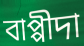
বাপ্পীদা